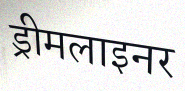
ड्रीमलाइनर